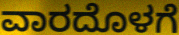
ವಾರದೊಳಗೆ